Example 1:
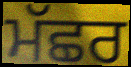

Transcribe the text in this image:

ਮੱਛਰ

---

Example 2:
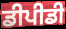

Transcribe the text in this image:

ਡੀਪੀਡੀ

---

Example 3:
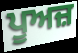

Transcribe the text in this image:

ਪੂਅਜ਼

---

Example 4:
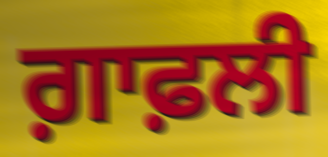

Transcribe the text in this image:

ਗ਼ਾਫ਼ਲੀ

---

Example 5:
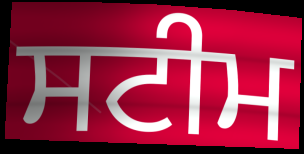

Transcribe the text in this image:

ਸਟੀਮ